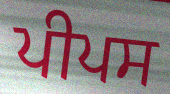
ਪੀਪਸ